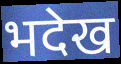
भदेख